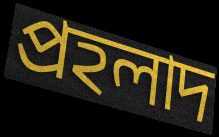
প্রহলাদ